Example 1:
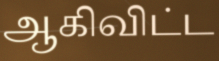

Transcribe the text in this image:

ஆகிவிட்ட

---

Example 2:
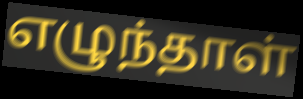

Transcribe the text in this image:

எழுந்தாள்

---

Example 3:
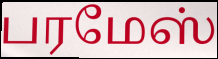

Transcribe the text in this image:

பரமேஸ்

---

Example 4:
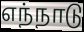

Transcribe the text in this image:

எந்நாடு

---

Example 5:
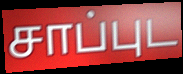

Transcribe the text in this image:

சாப்புட